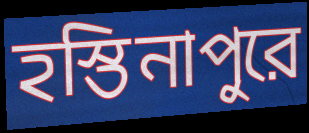
হস্তিনাপুরে